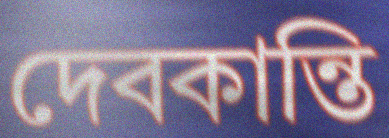
দেবকান্তি